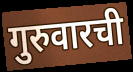
गुरुवारची